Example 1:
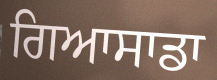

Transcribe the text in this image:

ਗਿਆਸਾਡਾ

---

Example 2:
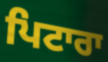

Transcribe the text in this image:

ਪਿਟਾਰਾ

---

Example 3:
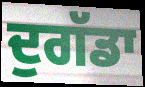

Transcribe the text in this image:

ਦੁਗੱਡਾ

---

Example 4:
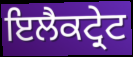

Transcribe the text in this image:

ਇਲੈਕਟ੍ਰੇਟ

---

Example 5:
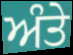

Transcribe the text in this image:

ਅੰਤੇ